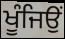
ਖੂੰਜਿਉਂ